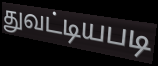
துவட்டியபடி